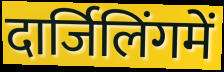
दार्जिलिंगमें